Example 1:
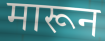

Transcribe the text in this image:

मारून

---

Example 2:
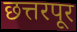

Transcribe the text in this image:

छत्तरपूर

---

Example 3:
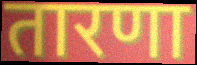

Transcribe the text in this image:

तारणा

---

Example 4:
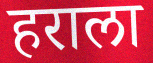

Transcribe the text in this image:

हराला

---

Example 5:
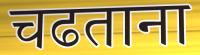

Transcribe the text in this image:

चढताना